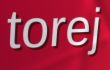
torej